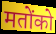
मतोंको